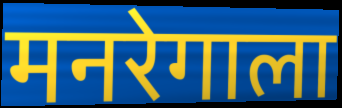
मनरेगाला